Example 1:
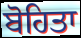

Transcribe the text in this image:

ਬੋਹਿਤਾ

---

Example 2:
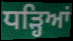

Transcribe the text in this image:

ਧੜ੍ਹਿਆਂ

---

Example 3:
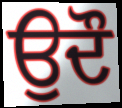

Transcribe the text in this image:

ਉਦੌ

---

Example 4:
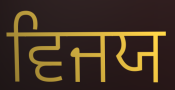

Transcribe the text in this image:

ਵਿਜਯ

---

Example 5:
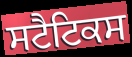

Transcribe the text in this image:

ਸਟੈਟਿਕਸ